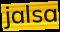
jalsa